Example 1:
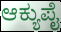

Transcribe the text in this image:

ಆಕ್ಯುಪೈ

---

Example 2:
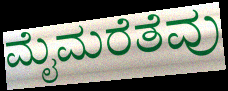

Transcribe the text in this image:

ಮೈಮರೆತೆವು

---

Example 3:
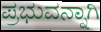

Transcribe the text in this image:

ಪ್ರಭುವನ್ನಾಗಿ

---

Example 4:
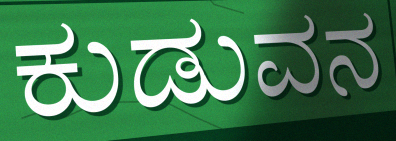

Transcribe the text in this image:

ಕುಡುವನ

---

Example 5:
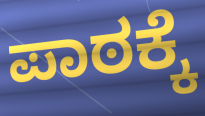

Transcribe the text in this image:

ಪಾಠಕ್ಕೆ